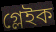
গ্লেইক